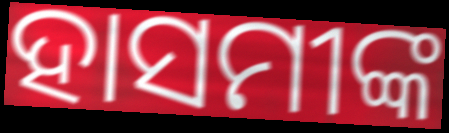
ହାସମୀଙ୍କ